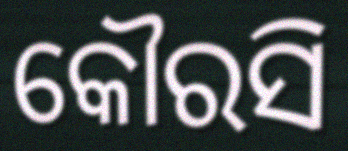
କୌରସି